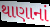
થાણાનાં